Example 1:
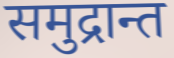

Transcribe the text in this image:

समुद्रान्त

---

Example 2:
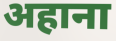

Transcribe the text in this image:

अहाना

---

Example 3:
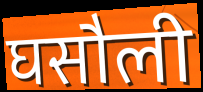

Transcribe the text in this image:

घसौली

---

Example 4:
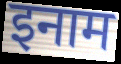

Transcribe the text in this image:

इनाम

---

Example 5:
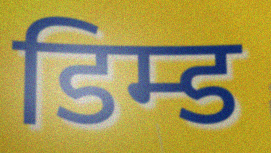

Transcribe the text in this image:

डिम्ड